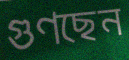
গুণছেন